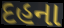
દહના